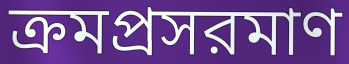
ক্রমপ্রসরমাণ